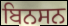
ਬਿਨਸਨ